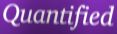
Quantified